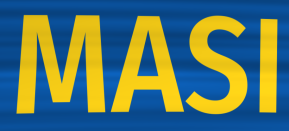
MASI